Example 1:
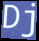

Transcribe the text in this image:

Dj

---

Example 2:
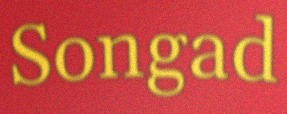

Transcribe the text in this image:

Songad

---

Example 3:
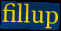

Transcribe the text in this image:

fillup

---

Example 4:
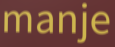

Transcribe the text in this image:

manje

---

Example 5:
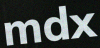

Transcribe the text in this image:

mdx